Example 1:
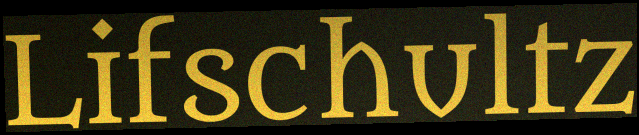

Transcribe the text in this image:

Lifschultz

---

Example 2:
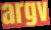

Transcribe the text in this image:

argv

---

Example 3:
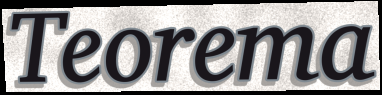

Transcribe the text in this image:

Teorema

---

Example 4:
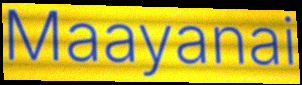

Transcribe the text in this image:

Maayanai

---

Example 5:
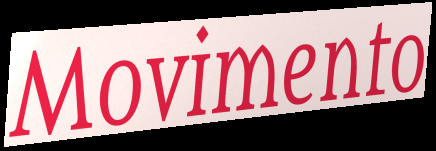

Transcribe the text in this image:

Movimento